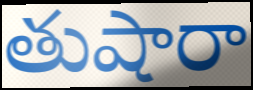
తుషారా